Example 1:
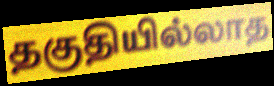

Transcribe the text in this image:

தகுதியில்லாத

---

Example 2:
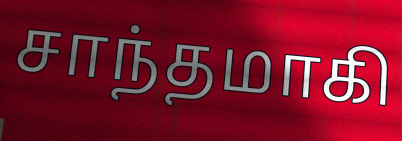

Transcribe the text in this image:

சாந்தமாகி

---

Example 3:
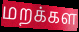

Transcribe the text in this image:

மறக்கள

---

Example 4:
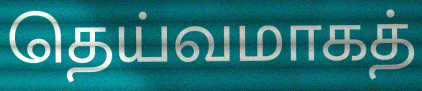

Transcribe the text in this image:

தெய்வமாகத்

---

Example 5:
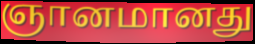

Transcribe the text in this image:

ஞானமானது